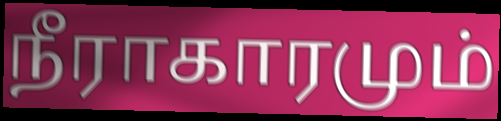
நீராகாரமும்